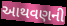
આથવણની